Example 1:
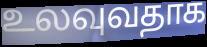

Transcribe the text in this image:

உலவுவதாக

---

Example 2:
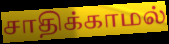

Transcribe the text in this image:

சாதிக்காமல்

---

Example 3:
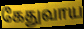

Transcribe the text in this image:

கேதுவாய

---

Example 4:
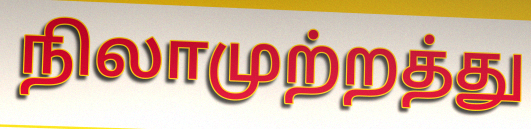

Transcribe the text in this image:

நிலாமுற்றத்து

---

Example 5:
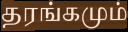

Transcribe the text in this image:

தரங்கமும்